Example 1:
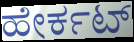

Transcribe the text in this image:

ಹೇರ್ಕಟ್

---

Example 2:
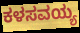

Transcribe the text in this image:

ಕಳಸವಯ್ಯ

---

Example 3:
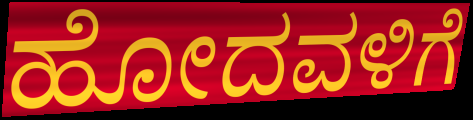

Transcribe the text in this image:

ಹೋದವಳಿಗೆ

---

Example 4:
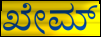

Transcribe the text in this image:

ಖೇಮ್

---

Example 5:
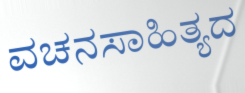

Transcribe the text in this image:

ವಚನಸಾಹಿತ್ಯದ